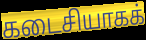
கடைசியாகக்